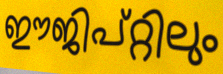
ഈജിപ്റ്റിലും